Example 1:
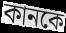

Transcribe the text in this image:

কানকে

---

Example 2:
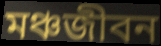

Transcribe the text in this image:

মঞ্চজীবন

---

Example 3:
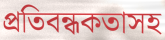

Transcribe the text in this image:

প্রতিবন্ধকতাসহ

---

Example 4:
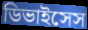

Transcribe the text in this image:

ডিভাইসেস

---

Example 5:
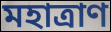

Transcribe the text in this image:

মহাত্রাণ